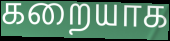
கறையாக